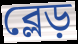
ব্লেড়